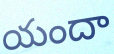
యందా